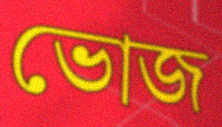
ভোজ